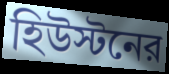
হিউস্টনের